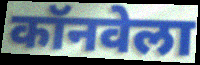
कॉनवेला